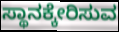
ಸ್ಥಾನಕ್ಕೇರಿಸುವ